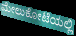
ಮೇಲುಕೋಟೆಯಲ್ಲಿ